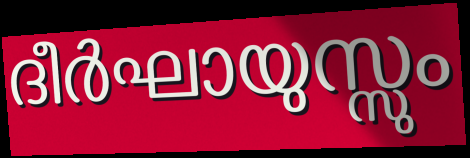
ദീർഘായുസ്സും